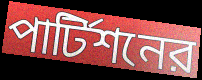
পার্টিশনের